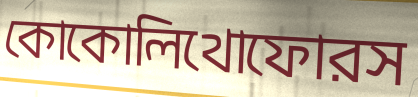
কোকোলিথোফোরস